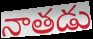
నాతడు